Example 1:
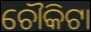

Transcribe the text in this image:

ଚୌକିଟା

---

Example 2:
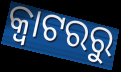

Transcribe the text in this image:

କ୍ୱାଟରରୁ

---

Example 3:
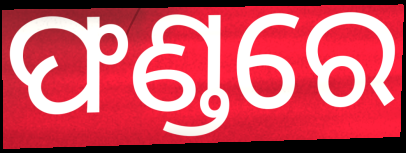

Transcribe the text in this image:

ଫଣ୍ଡରେ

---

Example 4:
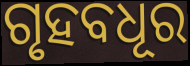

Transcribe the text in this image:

ଗୃହବଧୂର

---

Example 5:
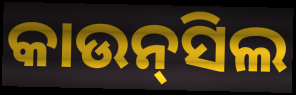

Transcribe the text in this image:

କାଉନ୍‍ସିଲ